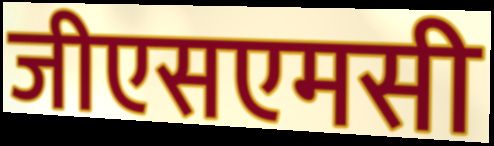
जीएसएमसी